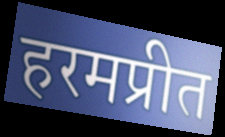
हरमप्रीत